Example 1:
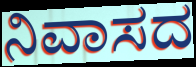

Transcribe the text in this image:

ನಿವಾಸದ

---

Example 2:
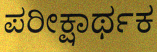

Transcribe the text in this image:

ಪರೀಕ್ಷಾರ್ಥಕ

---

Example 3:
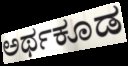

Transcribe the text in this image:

ಅರ್ಥಕೂಡ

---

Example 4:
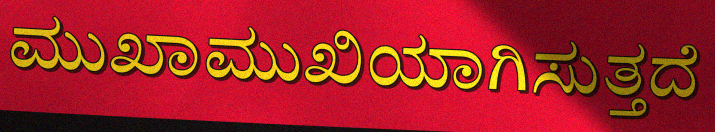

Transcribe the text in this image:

ಮುಖಾಮುಖಿಯಾಗಿಸುತ್ತದೆ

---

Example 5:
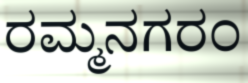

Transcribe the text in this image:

ರಮ್ಮನಗರಂ